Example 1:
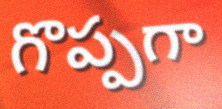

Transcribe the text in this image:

గొప్పగా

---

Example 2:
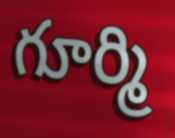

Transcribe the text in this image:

గూర్మి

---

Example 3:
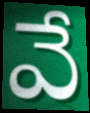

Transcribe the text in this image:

వే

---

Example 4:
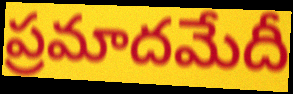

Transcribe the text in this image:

ప్రమాదమేదీ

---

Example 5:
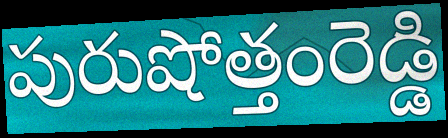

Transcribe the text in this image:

పురుషోత్తంరెడ్డి